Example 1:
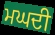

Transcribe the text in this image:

ਮਘਦੀ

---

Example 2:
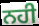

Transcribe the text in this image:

ਨਹੀ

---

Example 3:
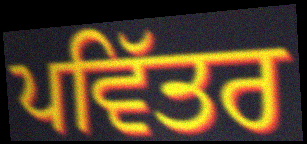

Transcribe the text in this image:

ਪਵਿੱਤਰ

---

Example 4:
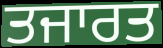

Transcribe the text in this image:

ਤਜਾਰਤ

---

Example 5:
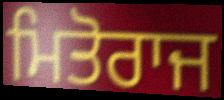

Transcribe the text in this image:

ਮਿਤੋਰਾਜ